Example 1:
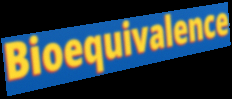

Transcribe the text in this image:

Bioequivalence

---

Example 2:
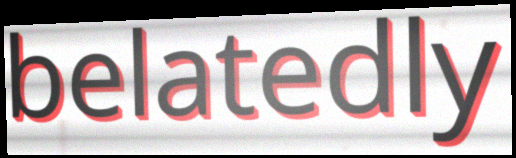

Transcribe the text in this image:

belatedly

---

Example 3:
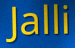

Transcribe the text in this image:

Jalli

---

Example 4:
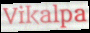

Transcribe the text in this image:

Vikalpa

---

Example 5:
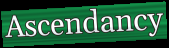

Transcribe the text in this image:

Ascendancy